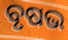
ବୃଷଭ